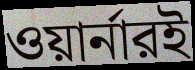
ওয়ার্নারই